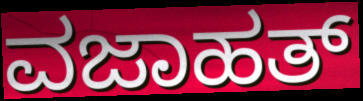
ವಜಾಹತ್